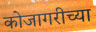
कोजागरीच्या